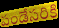
పండేసరికి